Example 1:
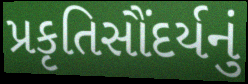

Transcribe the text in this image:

પ્રકૃતિસૌંદર્યનું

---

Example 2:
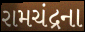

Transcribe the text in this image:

રામચંદ્રના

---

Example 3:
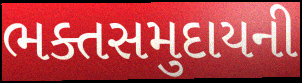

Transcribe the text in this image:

ભક્તસમુદાયની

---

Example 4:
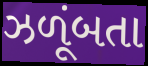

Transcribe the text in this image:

ઝળૂંબતા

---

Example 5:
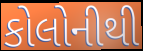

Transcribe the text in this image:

કોલોનીથી